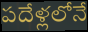
పదేళ్లలోనే